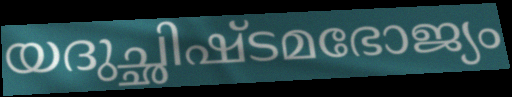
യദുച്ഛിഷ്ടമഭോജ്യം